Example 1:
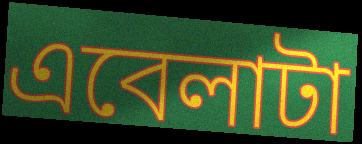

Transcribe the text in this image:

এবেলাটা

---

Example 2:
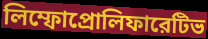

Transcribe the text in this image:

লিম্ফোপ্রোলিফারেটিভ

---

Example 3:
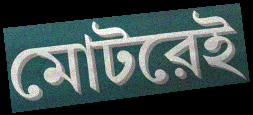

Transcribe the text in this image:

মোটরেই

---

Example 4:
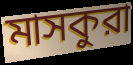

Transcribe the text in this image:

মাসকুরা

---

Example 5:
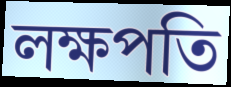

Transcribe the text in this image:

লক্ষপতি